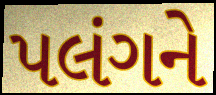
પલંગને